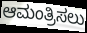
ಆಮಂತ್ರಿಸಲು